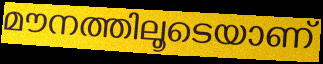
മൗനത്തിലൂടെയാണ്